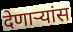
देणाऱ्यांस